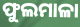
ଫୁଲମାଳା